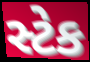
સ્ટેક